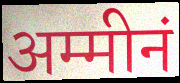
अम्मीनं